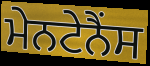
ਮੇਨਟੇਨੈਂਸ